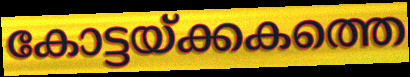
കോട്ടയ്ക്കകത്തെ